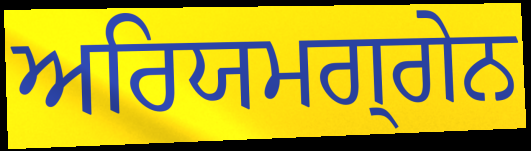
ਅਰਿਯਮਗ੍ਗੇਨ